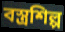
বস্ত্ৰশিল্প